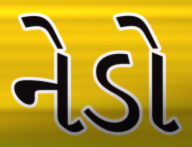
નેડો